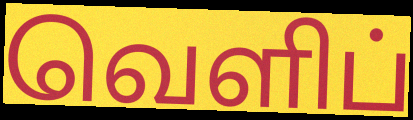
வெளிப்